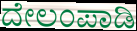
ದೇಲಂಪಾಡಿ